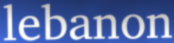
lebanon